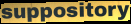
suppository